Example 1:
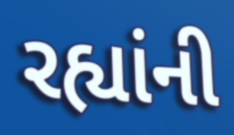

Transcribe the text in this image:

રહ્યાંની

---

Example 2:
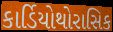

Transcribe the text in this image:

કાર્ડિયોથોરાસિક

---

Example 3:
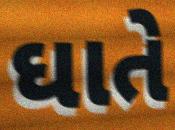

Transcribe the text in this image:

ઘાતે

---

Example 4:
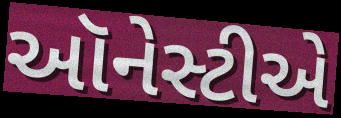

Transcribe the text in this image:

ઑનેસ્ટીએ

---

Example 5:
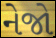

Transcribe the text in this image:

નેજો